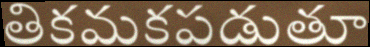
తికమకపడుతూ